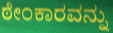
ಠೇಂಕಾರವನ್ನು